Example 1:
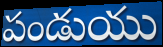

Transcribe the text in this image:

పండుయు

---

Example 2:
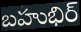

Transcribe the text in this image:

బహుభిర్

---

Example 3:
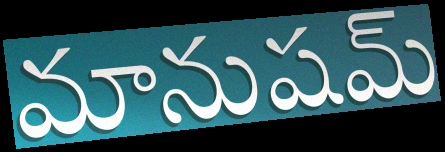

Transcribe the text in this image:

మానుషమ్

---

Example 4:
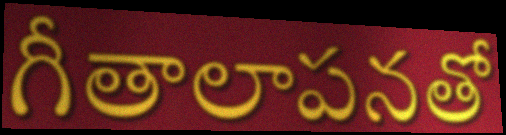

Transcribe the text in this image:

గీతాలాపనతో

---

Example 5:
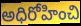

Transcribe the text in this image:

అధిరోహించి